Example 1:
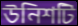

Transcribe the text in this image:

উনিশটি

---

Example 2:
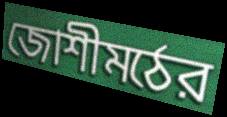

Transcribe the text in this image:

জোশীমঠের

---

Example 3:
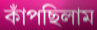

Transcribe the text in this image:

কাঁপছিলাম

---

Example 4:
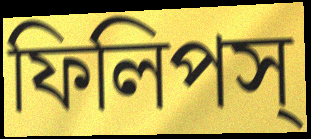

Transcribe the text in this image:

ফিলিপস্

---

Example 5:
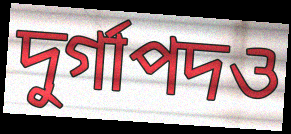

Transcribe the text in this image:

দুর্গাপদও